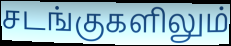
சடங்குகளிலும்